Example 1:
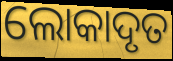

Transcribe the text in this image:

ଲୋକାଦୃତ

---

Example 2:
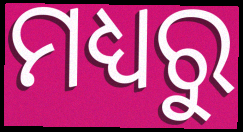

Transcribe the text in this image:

ମଧ୍ୟରୁ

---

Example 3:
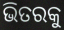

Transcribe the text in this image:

ଭିତରକୁ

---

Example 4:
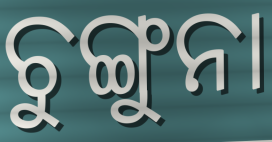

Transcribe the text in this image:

ଚୁଙ୍ଗୁନା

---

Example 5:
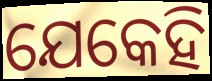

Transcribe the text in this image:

ଯେକେହି